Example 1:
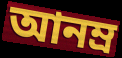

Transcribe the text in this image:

আনম্র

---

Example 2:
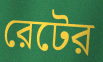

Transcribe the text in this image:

রেটের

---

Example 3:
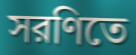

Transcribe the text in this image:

সরণিতে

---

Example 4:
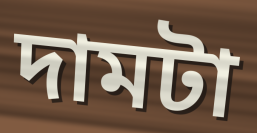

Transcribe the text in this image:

দামটা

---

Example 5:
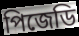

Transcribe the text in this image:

পিজেডি